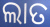
ଲାତ